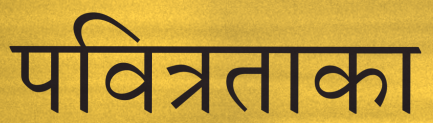
पवित्रताका